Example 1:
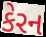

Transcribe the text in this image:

કેરન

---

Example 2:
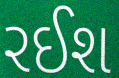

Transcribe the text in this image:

રઈશ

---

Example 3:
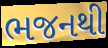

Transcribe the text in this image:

ભજનથી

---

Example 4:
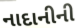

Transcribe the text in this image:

નાદાનીની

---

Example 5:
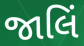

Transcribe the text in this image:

જાલિં